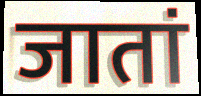
जातां